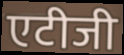
एटीजी